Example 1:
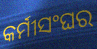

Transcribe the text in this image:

କର୍ମୀସଂଘର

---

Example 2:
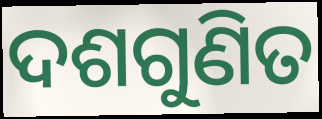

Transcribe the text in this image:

ଦଶଗୁଣିତ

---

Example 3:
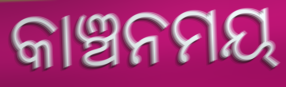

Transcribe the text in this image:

କାଞ୍ଚନମୟ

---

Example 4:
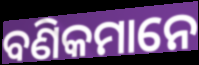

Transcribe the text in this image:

ବଣିକମାନେ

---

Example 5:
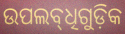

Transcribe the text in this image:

ଉପଲବ୍‌ଧିଗୁଡ଼ିକ